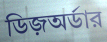
ডিজ়অর্ডার